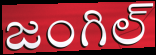
జంగిల్